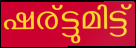
ഷര്ട്ടുമിട്ട്